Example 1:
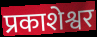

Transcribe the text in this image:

प्रकाशेश्वर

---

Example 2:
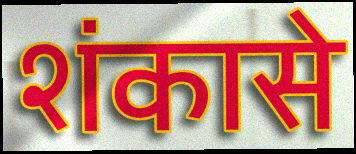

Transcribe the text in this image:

शंकासे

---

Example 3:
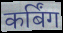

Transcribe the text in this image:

कर्बिंग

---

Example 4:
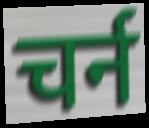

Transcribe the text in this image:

चर्न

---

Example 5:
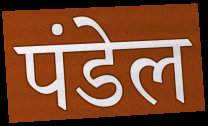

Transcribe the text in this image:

पंडेल